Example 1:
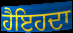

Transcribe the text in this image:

ਹੈਇਹਦਾ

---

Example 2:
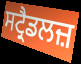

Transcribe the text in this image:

ਸਟ੍ਰੈਡਲਜ਼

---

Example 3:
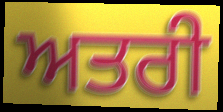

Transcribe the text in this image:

ਅਤਰੀ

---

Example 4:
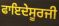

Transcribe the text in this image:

ਫਾਇਦੇਸੂਰਜੀ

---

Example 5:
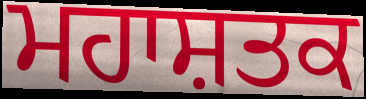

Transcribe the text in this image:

ਮਹਾਸ਼ਤਕ